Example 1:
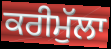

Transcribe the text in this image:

ਕਰੀਮੁੱਲਾ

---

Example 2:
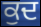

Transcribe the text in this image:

ਕੁਦ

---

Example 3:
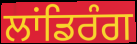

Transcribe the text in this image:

ਲਾਂਡਿਰੰਗ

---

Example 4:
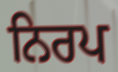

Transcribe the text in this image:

ਨਿਰਪ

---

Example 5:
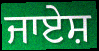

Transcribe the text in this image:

ਜਾਏਸ਼